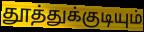
தூத்துக்குடியும்